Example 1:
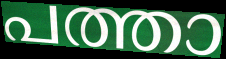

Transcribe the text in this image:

പത്താ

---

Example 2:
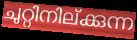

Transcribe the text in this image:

ചുറ്റിനില്ക്കുന്ന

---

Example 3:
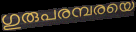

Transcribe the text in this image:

ഗുരുപരമ്പരയെ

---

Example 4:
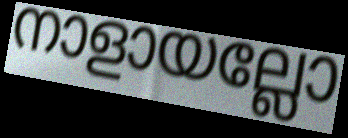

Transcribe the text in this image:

നാളായല്ലോ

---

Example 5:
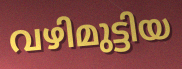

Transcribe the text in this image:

വഴിമുട്ടിയ